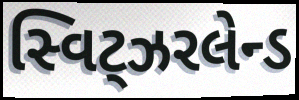
સ્વિટ્ઝરલેન્ડ